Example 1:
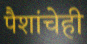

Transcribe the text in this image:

पैशांचेही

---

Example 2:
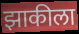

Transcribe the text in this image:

झाकीला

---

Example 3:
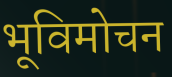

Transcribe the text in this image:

भूविमोचन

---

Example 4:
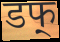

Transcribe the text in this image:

डफ्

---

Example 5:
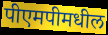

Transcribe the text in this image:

पीएमपीमधील